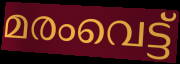
മരംവെട്ട്